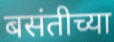
बसंतीच्या